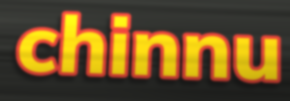
chinnu